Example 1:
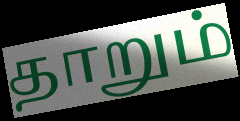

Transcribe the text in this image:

தாறும்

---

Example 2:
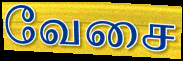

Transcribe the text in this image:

வேசை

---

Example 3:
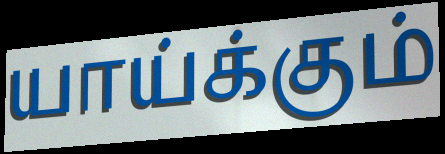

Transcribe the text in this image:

யாய்க்கும்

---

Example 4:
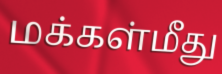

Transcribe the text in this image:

மக்கள்மீது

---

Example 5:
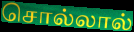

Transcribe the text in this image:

சொல்லால்